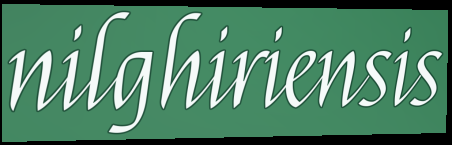
nilghiriensis